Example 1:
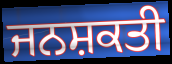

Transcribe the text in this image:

ਜਨਸ਼ਕਤੀ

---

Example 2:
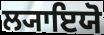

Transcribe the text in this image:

ਲ੍ਯਾਇਯੋ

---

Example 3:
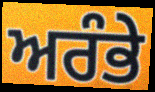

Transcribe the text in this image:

ਅਰੰਭੇ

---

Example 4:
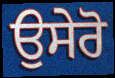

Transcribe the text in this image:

ਉਸੇਰੋ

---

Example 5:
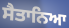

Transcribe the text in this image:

ਸੈਤਾਨਿਆ